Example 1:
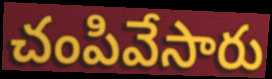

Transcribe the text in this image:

చంపివేసారు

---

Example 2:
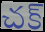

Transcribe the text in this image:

చక్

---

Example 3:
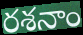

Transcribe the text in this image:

రశనాం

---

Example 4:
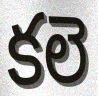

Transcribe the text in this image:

కలె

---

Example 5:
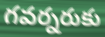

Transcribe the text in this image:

గవర్నరుకు